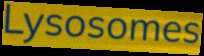
Lysosomes